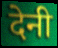
देनी